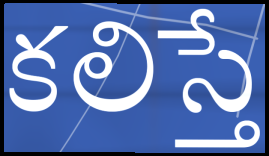
కలిస్తే